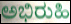
ಅಭಿರುಹಿ